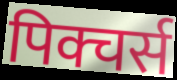
पिक्चर्स